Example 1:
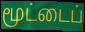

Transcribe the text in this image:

மூட்டைப்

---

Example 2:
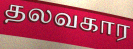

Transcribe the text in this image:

தலவகார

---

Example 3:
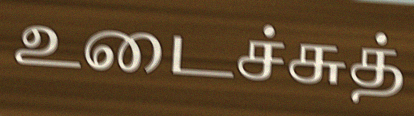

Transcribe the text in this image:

உடைச்சுத்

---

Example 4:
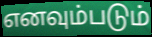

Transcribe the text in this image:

எனவும்படும்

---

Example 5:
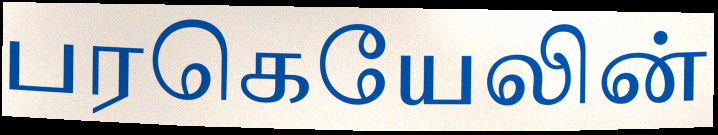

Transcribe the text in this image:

பரகெயேலின்